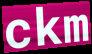
ckm